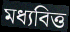
মধ্যবিত্ত